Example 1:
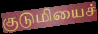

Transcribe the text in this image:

குடுமியைச்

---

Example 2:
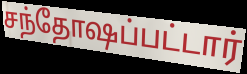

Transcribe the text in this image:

சந்தோஷப்பட்டார்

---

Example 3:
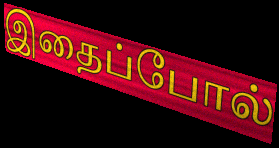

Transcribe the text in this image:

இதைப்போல்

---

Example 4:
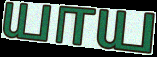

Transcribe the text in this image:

யாய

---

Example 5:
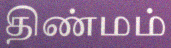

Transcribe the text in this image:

திண்மம்